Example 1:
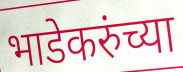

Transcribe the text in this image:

भाडेकरुंच्या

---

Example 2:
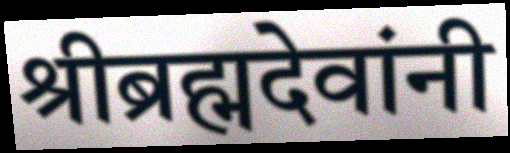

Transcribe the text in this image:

श्रीब्रह्मदेवांनी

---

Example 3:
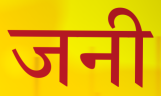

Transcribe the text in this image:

जनी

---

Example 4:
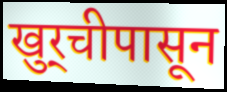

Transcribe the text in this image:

खुर्चीपासून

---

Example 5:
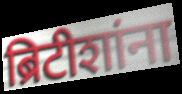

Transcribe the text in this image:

ब्रिटीशांना